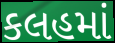
કલહમાં